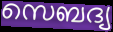
സെബദ്യ